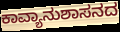
ಕಾವ್ಯಾನುಶಾಸನದ